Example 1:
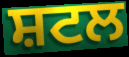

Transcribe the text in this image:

ਸ਼ਟਲ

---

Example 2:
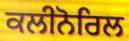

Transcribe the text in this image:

ਕਲੀਨੋਰਿਲ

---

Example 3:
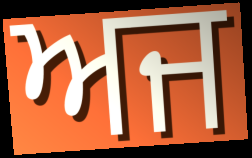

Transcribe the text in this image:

ਅਜ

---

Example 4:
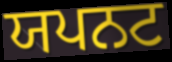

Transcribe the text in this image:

ਯਪਨਟ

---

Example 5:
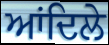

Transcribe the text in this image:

ਆਂਦਿਲੇ